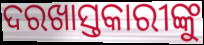
ଦରଖାସ୍ତକାରୀଙ୍କୁ